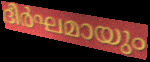
ദീർഘമായും